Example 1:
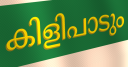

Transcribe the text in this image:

കിളിപാടും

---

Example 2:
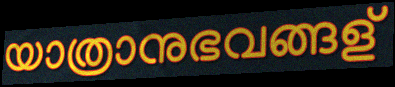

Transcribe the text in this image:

യാത്രാനുഭവങ്ങള്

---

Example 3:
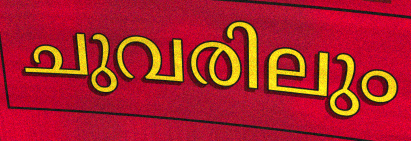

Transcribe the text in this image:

ചുവരിലും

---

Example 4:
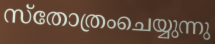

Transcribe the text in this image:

സ്തോത്രംചെയ്യുന്നു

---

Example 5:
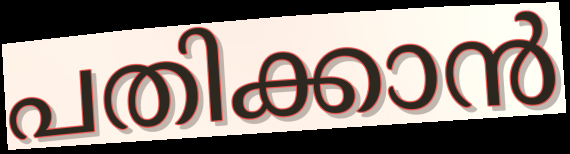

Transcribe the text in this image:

പതിക്കാൻ